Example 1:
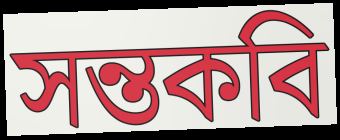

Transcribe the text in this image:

সন্তকবি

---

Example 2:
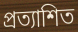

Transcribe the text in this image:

প্রত্যাশিত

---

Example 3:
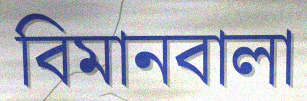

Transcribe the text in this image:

বিমানবালা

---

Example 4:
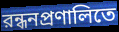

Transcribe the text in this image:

রন্ধনপ্রণালিতে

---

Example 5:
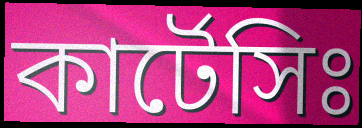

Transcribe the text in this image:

কার্টেসিঃ